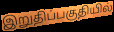
இறுதிப்பகுதியில்